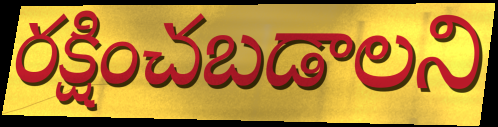
రక్షించబడాలని